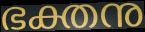
ഭക്തനു